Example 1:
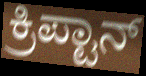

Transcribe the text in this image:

ಕ್ರಿಪ್ಟಾನ್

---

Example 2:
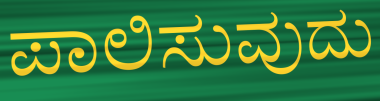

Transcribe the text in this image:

ಪಾಲಿಸುವುದು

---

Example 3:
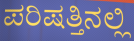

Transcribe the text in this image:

ಪರಿಷತ್ತಿನಲ್ಲಿ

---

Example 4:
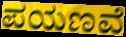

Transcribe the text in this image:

ಪಯಣವೆ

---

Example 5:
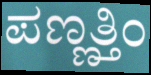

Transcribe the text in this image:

ಪಣ್ಣತ್ತಿಂ